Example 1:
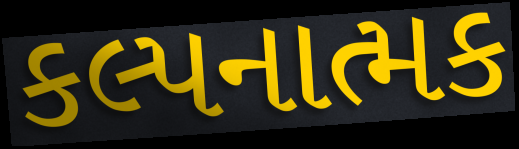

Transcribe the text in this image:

કલ્પનાત્મક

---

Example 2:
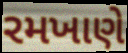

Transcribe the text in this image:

રમખાણે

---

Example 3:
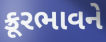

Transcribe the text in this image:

ક્રૂરભાવને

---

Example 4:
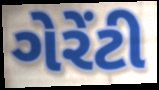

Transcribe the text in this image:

ગેરેંટી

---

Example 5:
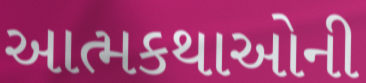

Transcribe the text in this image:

આત્મકથાઓની